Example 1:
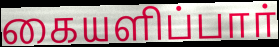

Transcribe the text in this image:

கையளிப்பார்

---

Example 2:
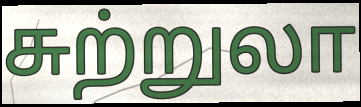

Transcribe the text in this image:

சுற்றுலா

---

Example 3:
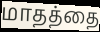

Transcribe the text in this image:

மாதத்தை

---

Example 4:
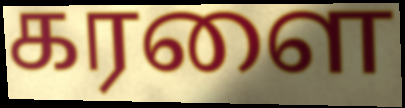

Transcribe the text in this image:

கரளை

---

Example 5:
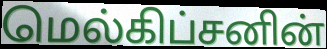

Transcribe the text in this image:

மெல்கிப்சனின்